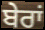
ਬੇਰਾਂ